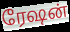
ரேஷன்